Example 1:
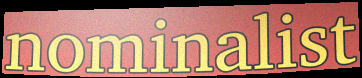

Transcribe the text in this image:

nominalist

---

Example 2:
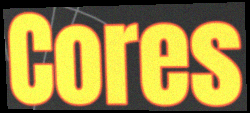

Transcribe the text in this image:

Cores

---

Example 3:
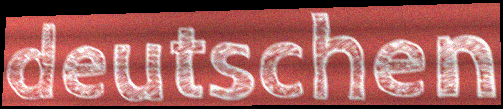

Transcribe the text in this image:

deutschen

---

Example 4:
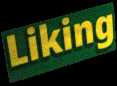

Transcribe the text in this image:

Liking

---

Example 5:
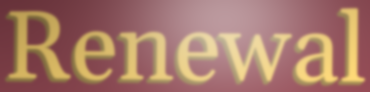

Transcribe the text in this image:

Renewal